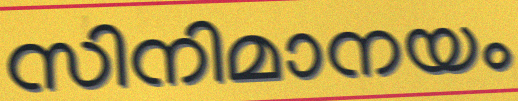
സിനിമാനയം